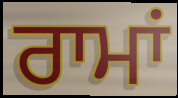
ਰਾਮਾਂ